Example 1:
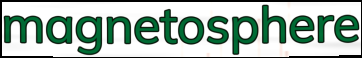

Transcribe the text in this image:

magnetosphere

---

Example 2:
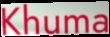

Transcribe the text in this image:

Khuma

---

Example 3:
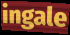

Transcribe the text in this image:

ingale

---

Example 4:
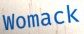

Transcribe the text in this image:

Womack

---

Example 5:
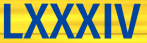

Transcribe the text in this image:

LXXXIV